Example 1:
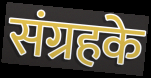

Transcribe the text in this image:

संग्रहके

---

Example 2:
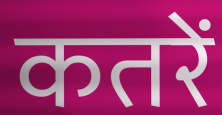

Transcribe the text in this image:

कतरें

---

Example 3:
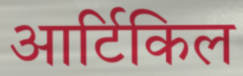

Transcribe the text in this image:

आर्टिकिल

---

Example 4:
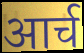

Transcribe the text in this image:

आर्च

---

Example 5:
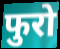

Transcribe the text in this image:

फुरो